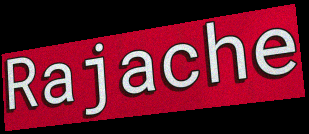
Rajache